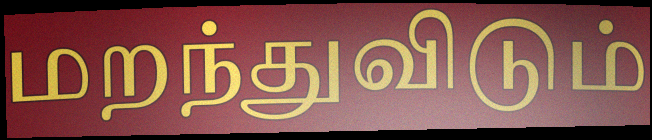
மறந்துவிடும்